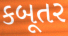
કબૂતર